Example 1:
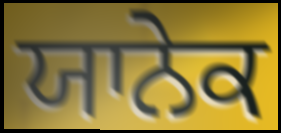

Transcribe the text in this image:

ਯਾਨੇਕ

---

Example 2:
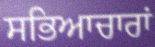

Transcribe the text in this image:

ਸਭਿਆਚਾਰਾਂ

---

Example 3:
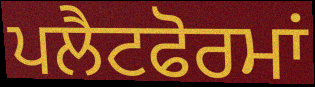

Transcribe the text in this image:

ਪਲੈਟਫੋਰਮਾਂ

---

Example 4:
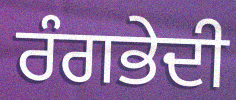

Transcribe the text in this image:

ਰੰਗਭੇਦੀ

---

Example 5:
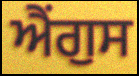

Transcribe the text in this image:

ਐਂਗੁਸ